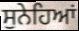
ਸੁਨੇਹਿਆਂ